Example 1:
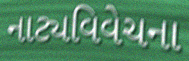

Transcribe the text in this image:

નાટ્યવિવેચના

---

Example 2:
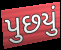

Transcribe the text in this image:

પુછયું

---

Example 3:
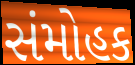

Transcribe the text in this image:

સંમોહક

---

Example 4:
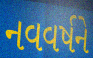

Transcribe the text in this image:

નવવર્ષને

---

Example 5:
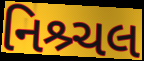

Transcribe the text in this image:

નિશ્ર્ચલ